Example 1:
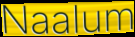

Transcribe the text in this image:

Naalum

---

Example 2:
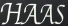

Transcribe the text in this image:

HAAS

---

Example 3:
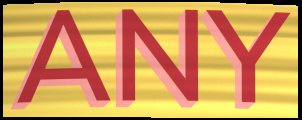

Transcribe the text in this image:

ANY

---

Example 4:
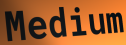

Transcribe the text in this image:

Medium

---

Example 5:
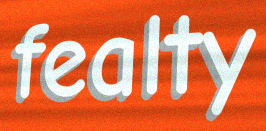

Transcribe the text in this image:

fealty